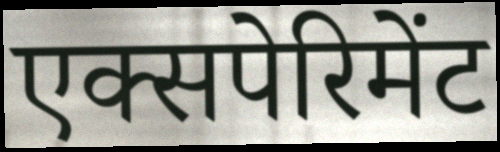
एक्सपेरिमेंट